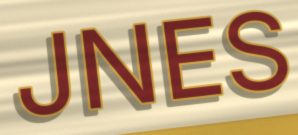
JNES